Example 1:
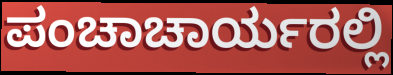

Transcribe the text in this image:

ಪಂಚಾಚಾರ್ಯರಲ್ಲಿ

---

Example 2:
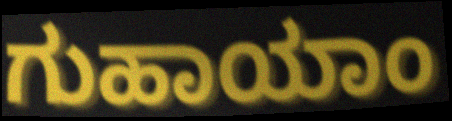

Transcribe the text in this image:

ಗುಹಾಯಾಂ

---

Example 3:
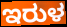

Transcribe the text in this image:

ಇರುಳ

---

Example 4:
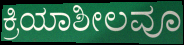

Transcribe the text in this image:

ಕ್ರಿಯಾಶೀಲವೂ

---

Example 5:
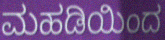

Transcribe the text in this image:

ಮಹಡಿಯಿಂದ